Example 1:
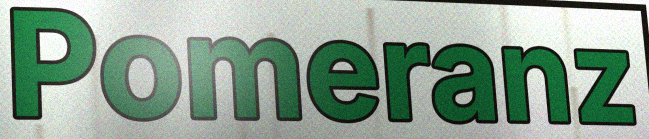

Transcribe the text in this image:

Pomeranz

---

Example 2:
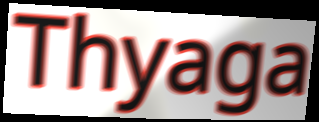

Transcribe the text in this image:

Thyaga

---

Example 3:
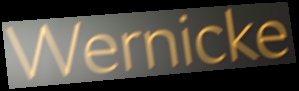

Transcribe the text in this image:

Wernicke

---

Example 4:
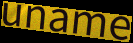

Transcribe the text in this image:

uname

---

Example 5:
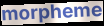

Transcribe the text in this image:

morpheme